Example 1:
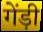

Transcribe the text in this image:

गेंड़ी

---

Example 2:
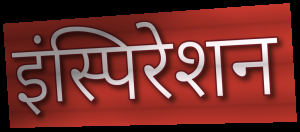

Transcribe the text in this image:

इंस्पिरेशन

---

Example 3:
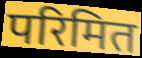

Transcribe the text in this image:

परिमित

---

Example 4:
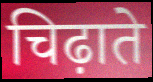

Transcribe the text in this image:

चिढ़ाते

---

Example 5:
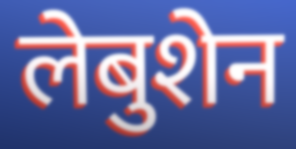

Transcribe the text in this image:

लेबुशेन